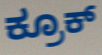
ಕ್ರೂಕ್